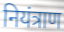
नियंत्राण